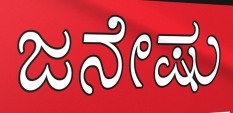
ಜನೇಷು